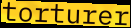
torturer